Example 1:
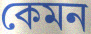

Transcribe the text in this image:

কেমন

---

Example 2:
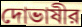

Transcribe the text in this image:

দোভাষীর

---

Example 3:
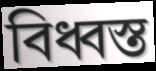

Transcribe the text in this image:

বিধ্বস্ত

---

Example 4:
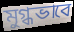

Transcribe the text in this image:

মুগ্ধভাবে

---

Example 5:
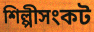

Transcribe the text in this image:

শিল্পীসংকট